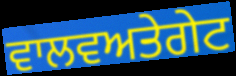
ਵਾਲਵਅਤੇਗੇਟ